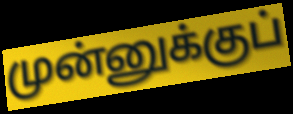
முன்னுக்குப்